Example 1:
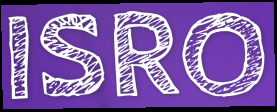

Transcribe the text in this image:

ISRO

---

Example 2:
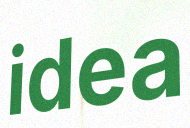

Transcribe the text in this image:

idea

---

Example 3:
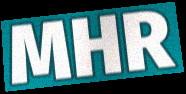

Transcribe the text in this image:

MHR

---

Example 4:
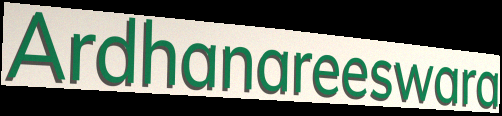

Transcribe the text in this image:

Ardhanareeswara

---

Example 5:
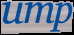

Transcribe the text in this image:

ump